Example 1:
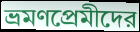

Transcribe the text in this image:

ভ্রমণপ্রেমীদের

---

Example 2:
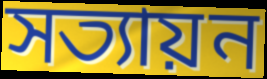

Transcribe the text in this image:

সত্যায়ন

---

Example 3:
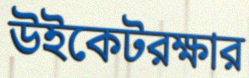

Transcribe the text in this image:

উইকেটরক্ষার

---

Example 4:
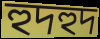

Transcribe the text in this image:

হুদহুদ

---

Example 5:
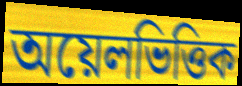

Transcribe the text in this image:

অয়েলভিত্তিক